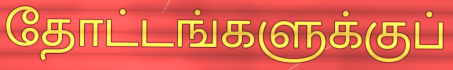
தோட்டங்களுக்குப்